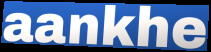
aankhe